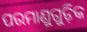
ପରମାଣୁଗୁଡ଼ିକ